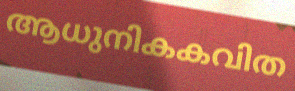
ആധുനികകവിത